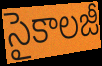
సైకాలజీ